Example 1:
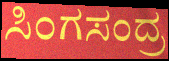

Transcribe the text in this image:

ಸಿಂಗಸಂದ್ರ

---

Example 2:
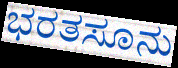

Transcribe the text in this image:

ಭರತಸೂನು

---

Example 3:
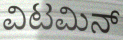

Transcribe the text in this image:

ವಿಟಮಿನ್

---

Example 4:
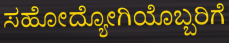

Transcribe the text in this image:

ಸಹೋದ್ಯೋಗಿಯೊಬ್ಬರಿಗೆ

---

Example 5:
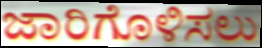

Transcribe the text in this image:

ಜಾರಿಗೊಳಿಸಲು